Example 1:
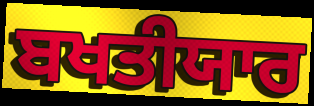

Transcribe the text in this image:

ਬਖਤੀਯਾਰ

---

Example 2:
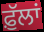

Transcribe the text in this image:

ਫ਼ੁੱਲਾਂ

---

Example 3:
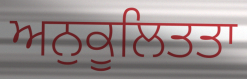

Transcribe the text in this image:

ਅਨੁਕੂਲਿਤਤਾ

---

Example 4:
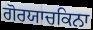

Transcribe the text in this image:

ਗੋਰਯਾਚਕਿਨਾ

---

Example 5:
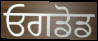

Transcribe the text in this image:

ਓਗਡੋਡ